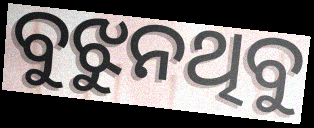
ବୁଝୁନଥିବୁ